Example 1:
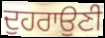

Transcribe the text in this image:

ਦੁਹਰਾਉਣੀ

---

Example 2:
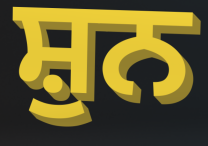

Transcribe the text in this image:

ਸ਼ੁਨ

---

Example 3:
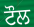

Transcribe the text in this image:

ਟੌਲ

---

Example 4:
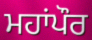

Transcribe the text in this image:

ਮਹਾਂਪੌਰ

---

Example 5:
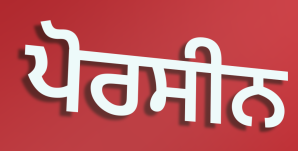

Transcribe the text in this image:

ਪੋਰਸੀਨ